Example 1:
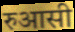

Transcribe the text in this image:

रुआसी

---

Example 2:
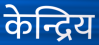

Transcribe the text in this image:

केन्द्रिय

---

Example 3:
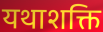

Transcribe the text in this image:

यथाशक्ति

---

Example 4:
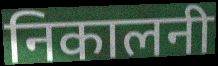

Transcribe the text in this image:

निकालनी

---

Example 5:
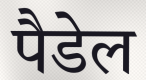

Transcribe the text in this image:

पैडेल